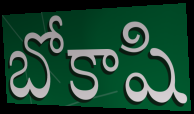
బోకాషి